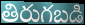
తిరుగబడి